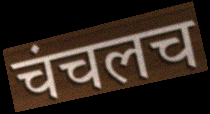
चंचलच